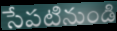
సేపటినుండి